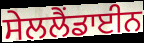
ਸੇਲਲੈਂਡਾਈਨ